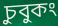
চুবুকং